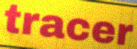
tracer